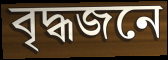
বৃদ্ধজনে